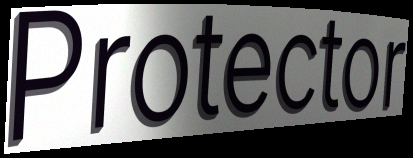
Protector